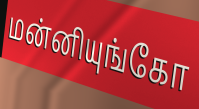
மன்னியுங்கோ